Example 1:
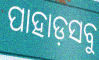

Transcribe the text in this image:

ପାହାଡ଼ସବୁ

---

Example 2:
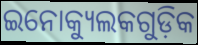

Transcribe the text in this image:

ଇନୋକ୍ଯୁଲକଗୁଡ଼ିକ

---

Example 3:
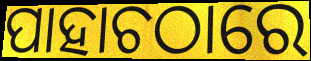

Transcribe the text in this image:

ପାହାଚଠାରେ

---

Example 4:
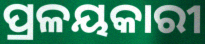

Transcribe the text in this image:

ପ୍ରଳୟକାରୀ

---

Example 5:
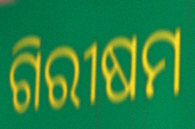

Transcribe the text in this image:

ଗିରୀଷମ